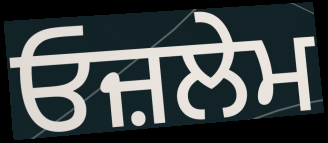
ਓਜ਼ਲੇਮ